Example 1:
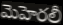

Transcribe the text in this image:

మెహెరలీ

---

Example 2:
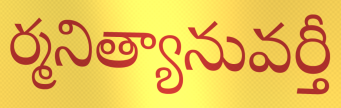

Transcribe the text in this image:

ర్మనిత్యానువర్తీ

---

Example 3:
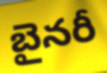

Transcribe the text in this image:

బైనరీ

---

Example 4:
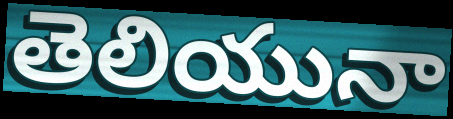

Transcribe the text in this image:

తెలియునా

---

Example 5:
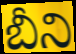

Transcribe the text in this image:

బీని